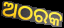
ଅଠରକ